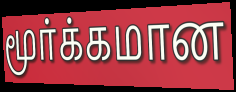
மூர்க்கமான